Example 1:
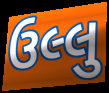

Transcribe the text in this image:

ઉલ્લુ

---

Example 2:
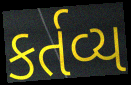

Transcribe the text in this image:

કર્તવ્ય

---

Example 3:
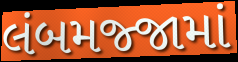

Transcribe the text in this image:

લંબમજ્જામાં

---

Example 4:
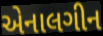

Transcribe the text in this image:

એનાલગીન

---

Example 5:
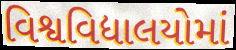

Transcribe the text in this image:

વિશ્વવિદ્યાલયોમાં